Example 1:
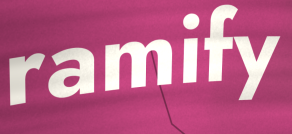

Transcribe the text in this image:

ramify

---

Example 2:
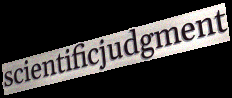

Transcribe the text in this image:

scientificjudgment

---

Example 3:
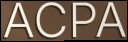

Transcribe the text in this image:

ACPA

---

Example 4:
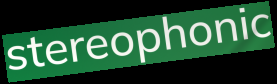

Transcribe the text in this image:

stereophonic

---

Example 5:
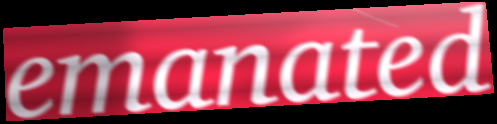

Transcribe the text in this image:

emanated